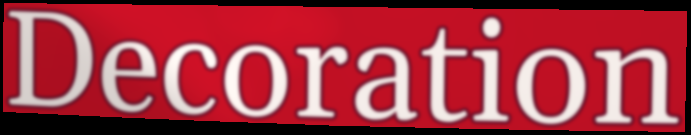
Decoration